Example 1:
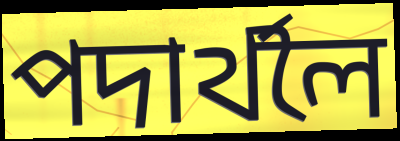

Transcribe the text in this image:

পদাৰ্থলৈ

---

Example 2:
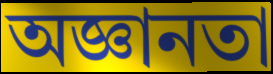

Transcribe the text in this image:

অজ্ঞানতা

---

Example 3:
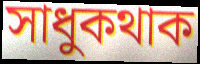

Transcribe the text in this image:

সাধুকথাক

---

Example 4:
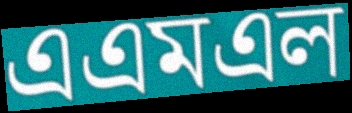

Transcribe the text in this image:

এএমএল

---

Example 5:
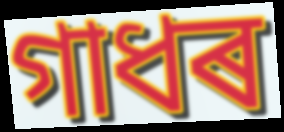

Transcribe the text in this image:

গাধৰ